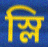
স্লি